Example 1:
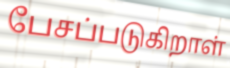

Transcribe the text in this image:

பேசப்படுகிறாள்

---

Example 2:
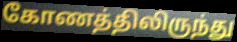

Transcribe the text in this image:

கோணத்திலிருந்து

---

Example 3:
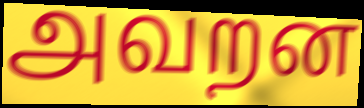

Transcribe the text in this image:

அவறன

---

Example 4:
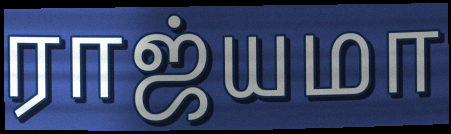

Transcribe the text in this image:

ராஜ்யமா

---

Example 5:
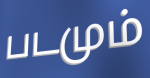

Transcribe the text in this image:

படமும்